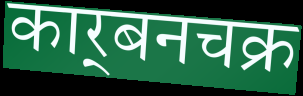
कार्बनचक्र